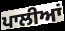
ਪਾਲੀਆਂ